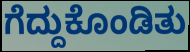
ಗೆದ್ದುಕೊಂಡಿತು